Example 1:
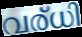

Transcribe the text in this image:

വര്ധി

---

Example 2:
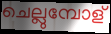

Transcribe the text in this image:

ചെല്ലുമ്പോള്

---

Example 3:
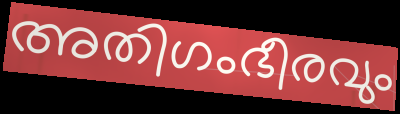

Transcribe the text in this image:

അതിഗംഭീരവും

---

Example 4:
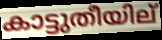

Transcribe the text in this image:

കാട്ടുതീയില്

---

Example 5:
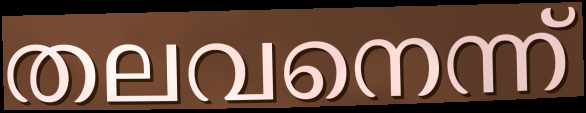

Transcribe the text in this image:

തലവനെന്ന്